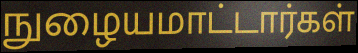
நுழையமாட்டார்கள்